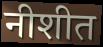
नीशीत